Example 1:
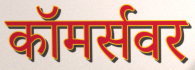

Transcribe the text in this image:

कॉमर्सवर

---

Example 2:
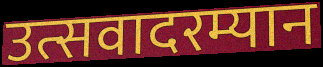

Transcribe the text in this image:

उत्सवादरम्यान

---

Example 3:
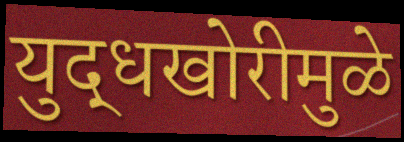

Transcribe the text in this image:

युद्धखोरीमुळे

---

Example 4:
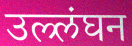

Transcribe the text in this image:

उल्लंघन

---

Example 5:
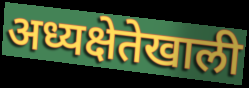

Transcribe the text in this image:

अध्यक्षेतेखाली